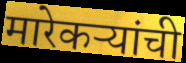
मारेकऱ्यांची